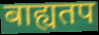
बाह्यतप